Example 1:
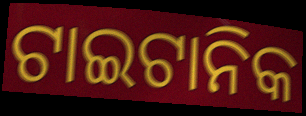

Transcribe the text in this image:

ଟାଇଟାନିକ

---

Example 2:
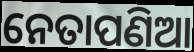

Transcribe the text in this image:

ନେତାପଣିଆ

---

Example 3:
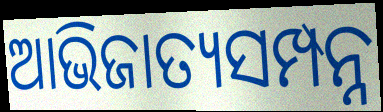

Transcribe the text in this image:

ଆଭିଜାତ୍ୟସମ୍ପନ୍ନ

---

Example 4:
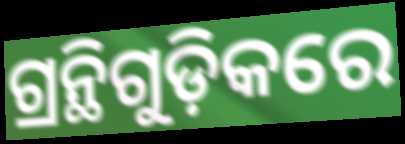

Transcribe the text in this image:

ଗ୍ରନ୍ଥିଗୁଡ଼ିକରେ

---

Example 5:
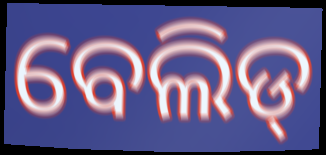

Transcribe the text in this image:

ବେଲିଡ୍